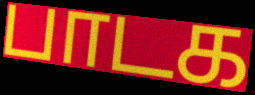
பாடக